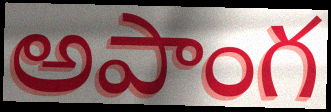
అపాంగ